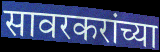
सावरकरांच्या